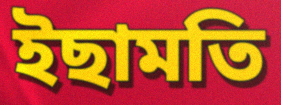
ইছামতি